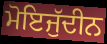
ਮੋਇਜੁੱਦੀਨ